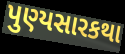
પુણ્યસારકથા